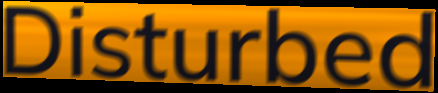
Disturbed